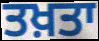
ਤਖ਼ਤਾ